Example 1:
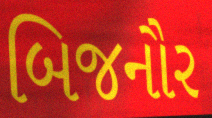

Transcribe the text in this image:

બિજનૌર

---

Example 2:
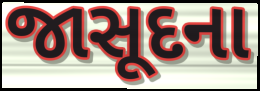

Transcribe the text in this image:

જાસૂદના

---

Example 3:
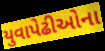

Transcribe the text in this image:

યુવાપેઢીઓના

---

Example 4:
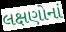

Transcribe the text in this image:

લક્ષણોનાં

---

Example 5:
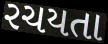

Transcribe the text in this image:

રચયતા